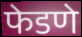
फेडणे